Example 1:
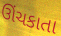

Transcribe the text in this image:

ઊંચકાતા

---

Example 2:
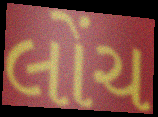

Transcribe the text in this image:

લોંચ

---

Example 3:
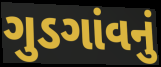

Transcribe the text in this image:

ગુડગાંવનું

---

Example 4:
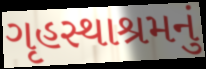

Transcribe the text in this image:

ગૃહસ્થાશ્રમનું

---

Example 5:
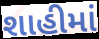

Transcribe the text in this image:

શાહીમાં